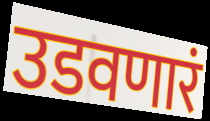
उडवणारं